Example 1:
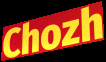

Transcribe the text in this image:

Chozh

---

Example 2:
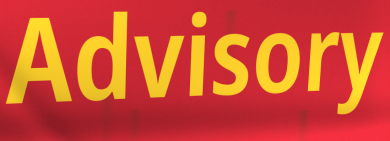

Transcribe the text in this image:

Advisory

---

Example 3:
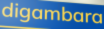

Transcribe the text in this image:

digambara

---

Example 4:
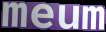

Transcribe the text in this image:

meum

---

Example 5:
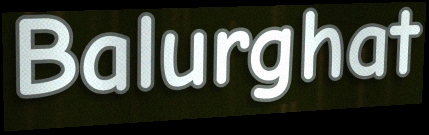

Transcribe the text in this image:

Balurghat